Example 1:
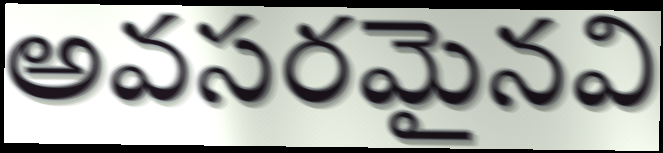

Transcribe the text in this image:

అవసరమైనవి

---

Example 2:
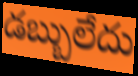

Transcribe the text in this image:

డబ్బులేదు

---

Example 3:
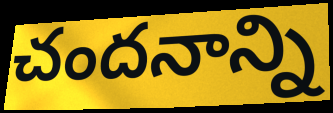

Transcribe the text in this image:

చందనాన్ని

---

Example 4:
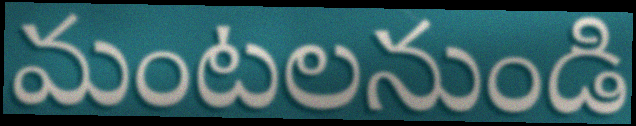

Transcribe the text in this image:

మంటలనుండి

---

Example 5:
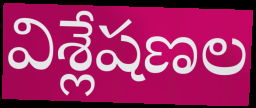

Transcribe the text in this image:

విశ్లేషణల